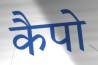
कैपो